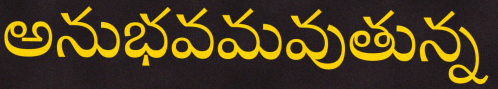
అనుభవమవుతున్న